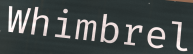
Whimbrel